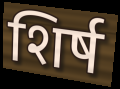
शिर्ष